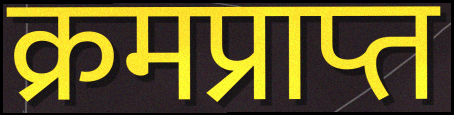
क्रमप्राप्‍त